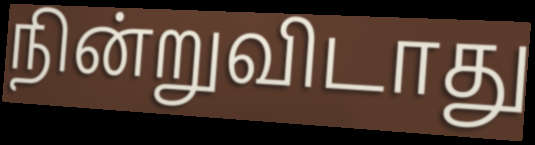
நின்றுவிடாது